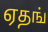
ஏதங்